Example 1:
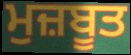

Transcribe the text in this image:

ਮੁਜ਼ਬੂਤ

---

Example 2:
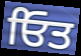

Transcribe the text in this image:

ਓਿਤ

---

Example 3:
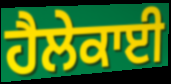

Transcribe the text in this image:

ਹੈਲੇਕਾਈ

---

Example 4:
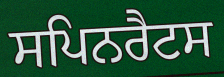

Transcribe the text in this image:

ਸਪਿਨਰੈਟਸ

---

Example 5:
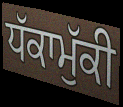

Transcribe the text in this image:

ਧੱਕਾਮੁੱਕੀ